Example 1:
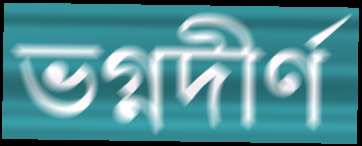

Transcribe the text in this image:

ভগ্নদীর্ণ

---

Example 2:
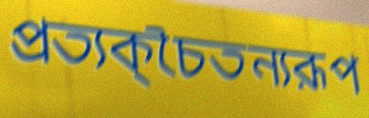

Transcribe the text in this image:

প্রত্যক্‌চৈতন্যরূপ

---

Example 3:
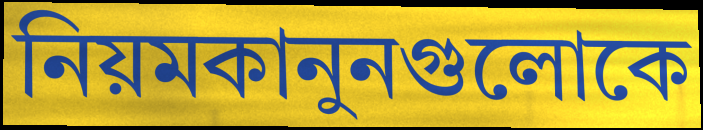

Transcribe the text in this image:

নিয়মকানুনগুলোকে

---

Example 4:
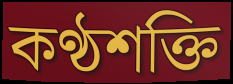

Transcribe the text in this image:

কণ্ঠশক্তি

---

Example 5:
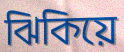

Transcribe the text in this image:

ঝিকিয়ে